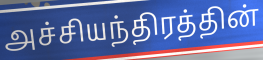
அச்சியந்திரத்தின்